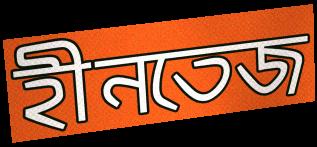
হীনতেজ